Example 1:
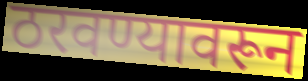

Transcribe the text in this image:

ठरवण्यावरून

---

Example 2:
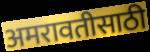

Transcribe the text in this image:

अमरावतीसाठी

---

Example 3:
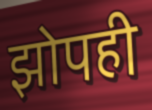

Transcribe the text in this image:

झोपही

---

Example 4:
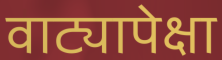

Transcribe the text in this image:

वाट्यापेक्षा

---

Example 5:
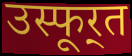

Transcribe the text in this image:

उस्फूर्त